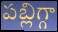
పబ్లిగ్గా